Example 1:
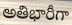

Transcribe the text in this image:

అతిభారీగా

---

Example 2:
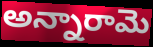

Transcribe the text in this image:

అన్నారామె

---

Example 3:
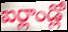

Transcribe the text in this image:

ఐర్లాండ్లో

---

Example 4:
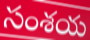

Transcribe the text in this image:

సంశయ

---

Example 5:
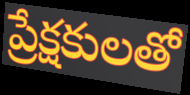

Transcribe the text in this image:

ప్రేక్షకులతో